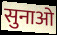
सुनाओ